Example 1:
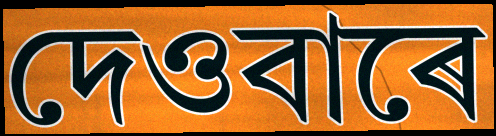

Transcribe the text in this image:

দেওবাৰে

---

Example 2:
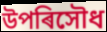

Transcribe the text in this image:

উপৰিসৌধ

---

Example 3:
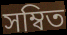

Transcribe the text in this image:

সম্বিত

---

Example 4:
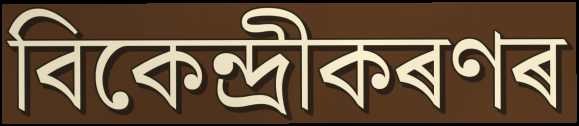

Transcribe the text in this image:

বিকেন্দ্ৰীকৰণৰ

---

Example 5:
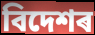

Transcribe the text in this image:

বিদেশৰ